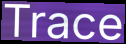
Trace